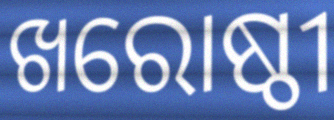
ଖରୋଷ୍ଠୀ